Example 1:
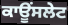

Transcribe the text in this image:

ਕਾਊਂਸਲੇਟ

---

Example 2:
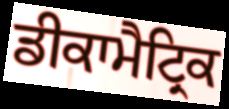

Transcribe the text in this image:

ਡੀਕਾਮੈਟ੍ਰਿਕ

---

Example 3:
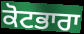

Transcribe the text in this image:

ਕੋਟਭਾਰਾ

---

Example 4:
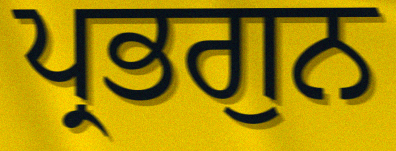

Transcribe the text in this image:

ਪ੍ਰਭਗੁਨ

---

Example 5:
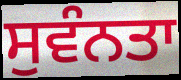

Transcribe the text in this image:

ਸੁਵੰਨਤਾ